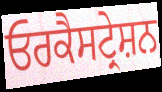
ਓਰਕੈਸਟ੍ਰੇਸ਼ਨ